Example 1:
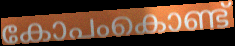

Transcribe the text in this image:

കോപംകൊണ്ട്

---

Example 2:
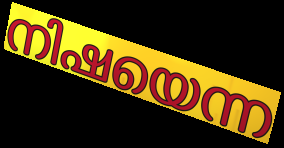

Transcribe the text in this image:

നിഷയെന്ന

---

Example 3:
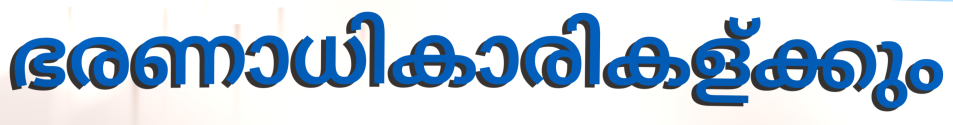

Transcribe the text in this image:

ഭരണാധികാരികള്ക്കും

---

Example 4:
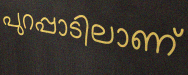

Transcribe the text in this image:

പുറപ്പാടിലാണ്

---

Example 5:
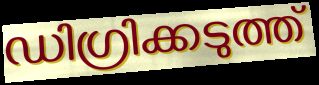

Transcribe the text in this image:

ഡിഗ്രിക്കടുത്ത്